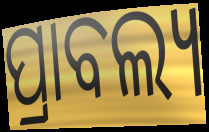
ପ୍ରାବଲ୍ୟ